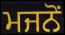
ਮਜਨੋਂ